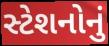
સ્ટેશનોનું